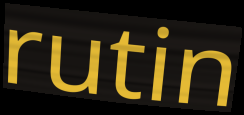
rutin